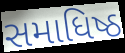
સમાધિષ્ઠ